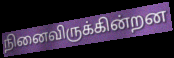
நினைவிருக்கின்றன